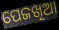
ପେଜଖିଆ